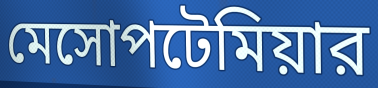
মেসোপটেমিয়ার